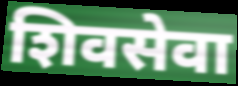
शिवसेवा